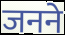
जनने